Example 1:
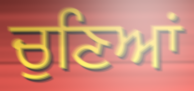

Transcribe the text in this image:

ਚੁਣਿਆਂ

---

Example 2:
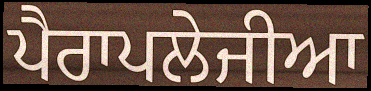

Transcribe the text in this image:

ਪੈਰਾਪਲੇਜੀਆ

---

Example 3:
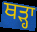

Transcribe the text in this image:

ਥੜ੍ਹਾ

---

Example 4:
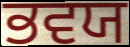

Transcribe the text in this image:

ਭਵਯ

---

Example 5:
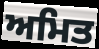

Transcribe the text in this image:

ਅਮਿਤ